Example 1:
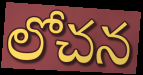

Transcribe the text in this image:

లోచన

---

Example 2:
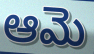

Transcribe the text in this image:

ఆమె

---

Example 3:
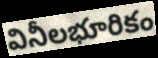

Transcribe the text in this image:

వినీలభూరికం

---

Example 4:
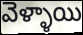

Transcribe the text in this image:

వెళ్ళాయి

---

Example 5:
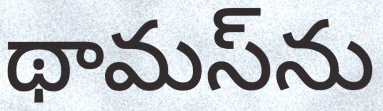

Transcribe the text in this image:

థామస్‌ను